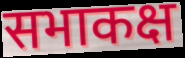
सभाकक्ष